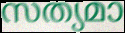
സത്യമാ